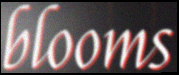
blooms